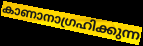
കാണാനാഗ്രഹിക്കുന്ന